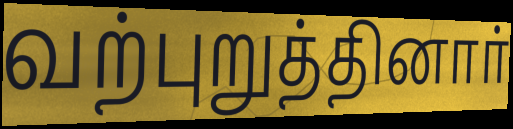
வற்புறுத்தினார்